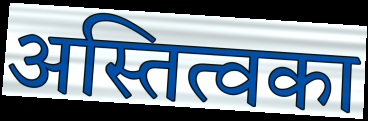
अस्तित्वका